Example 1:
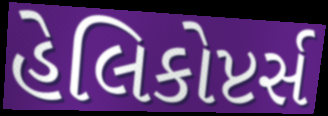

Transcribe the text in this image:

હેલિકોપ્ટર્સ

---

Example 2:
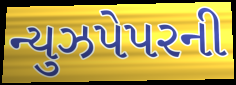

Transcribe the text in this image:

ન્યુઝપેપરની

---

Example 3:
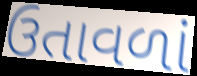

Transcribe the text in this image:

ઉતાવળાં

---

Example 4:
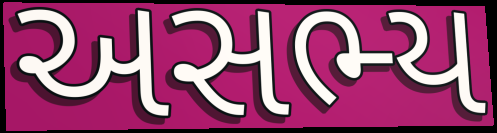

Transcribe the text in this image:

અસભ્ય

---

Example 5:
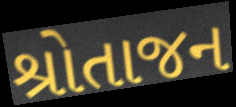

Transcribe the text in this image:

શ્રોતાજન